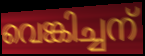
വെങ്കിച്ചന്